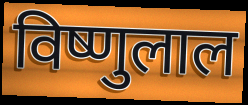
विष्णुलाल